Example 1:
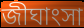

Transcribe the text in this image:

জীঘাংসা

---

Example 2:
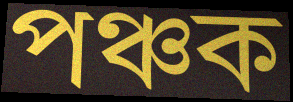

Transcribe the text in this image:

পঞ্চক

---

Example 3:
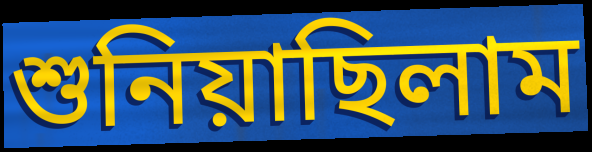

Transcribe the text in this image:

শুনিয়াছিলাম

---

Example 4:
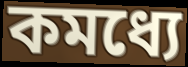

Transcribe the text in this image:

কমধ্যে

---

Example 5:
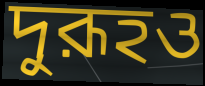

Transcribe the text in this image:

দুরূহও